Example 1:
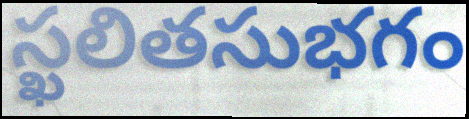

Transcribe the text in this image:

స్ఖలితసుభగం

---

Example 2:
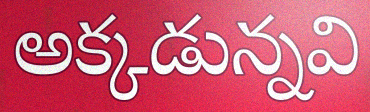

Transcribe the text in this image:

అక్కడున్నవి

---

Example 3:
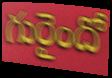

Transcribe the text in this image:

గురైందో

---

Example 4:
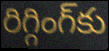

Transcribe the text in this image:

రిగ్గింగ్‌కు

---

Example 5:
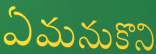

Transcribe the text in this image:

ఏమనుకొని